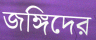
জঙ্গিদের